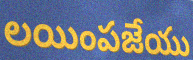
లయింపజేయు